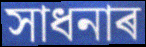
সাধনাৰ